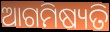
ଆଗମିଷ୍ୟତି